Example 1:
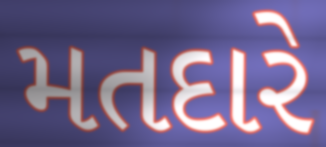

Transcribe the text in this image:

મતદારે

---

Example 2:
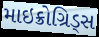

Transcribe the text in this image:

માઇક્રોગ્રિડ્સ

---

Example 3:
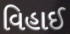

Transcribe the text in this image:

વિહાઈ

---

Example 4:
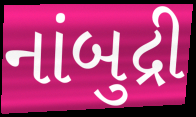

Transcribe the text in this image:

નાંબુદ્રી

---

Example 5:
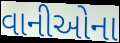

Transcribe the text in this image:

વાનીઓના